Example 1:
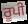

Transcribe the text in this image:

ਰੂਪੀ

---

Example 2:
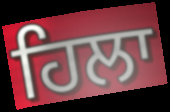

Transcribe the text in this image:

ਹਿਲਾ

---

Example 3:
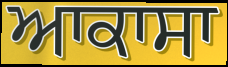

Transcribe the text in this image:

ਆਕਾਸਾ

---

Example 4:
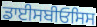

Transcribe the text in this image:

ਡਾਈਸਬੀਓਸਿਸ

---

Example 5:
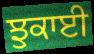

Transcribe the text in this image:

ਝੁਕਾਈ